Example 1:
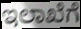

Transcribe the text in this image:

ಇಲಾಖೆಗೆ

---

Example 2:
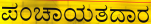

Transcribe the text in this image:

ಪಂಚಾಯತದಾರ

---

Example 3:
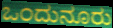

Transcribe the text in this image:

ಒಂದುನೂರು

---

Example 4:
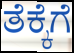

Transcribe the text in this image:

ತೆಕ್ಕೆಗೆ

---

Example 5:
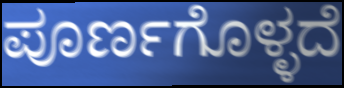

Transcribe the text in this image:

ಪೂರ್ಣಗೊಳ್ಳದೆ